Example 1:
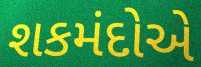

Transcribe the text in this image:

શકમંદોએ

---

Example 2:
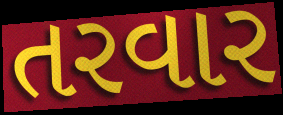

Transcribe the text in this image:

તરવાર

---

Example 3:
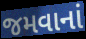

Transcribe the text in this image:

જમવાનાં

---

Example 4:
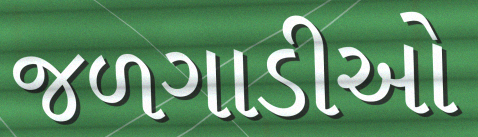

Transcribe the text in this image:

જળગાડીઓ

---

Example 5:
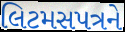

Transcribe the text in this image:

લિટમસપત્રને